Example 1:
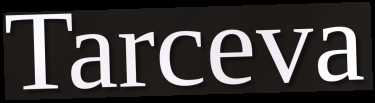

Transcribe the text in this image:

Tarceva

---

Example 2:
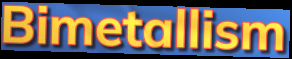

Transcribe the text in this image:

Bimetallism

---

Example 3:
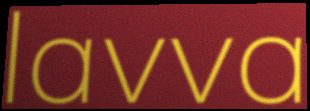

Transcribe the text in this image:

lavva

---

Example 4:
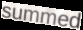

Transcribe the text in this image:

summed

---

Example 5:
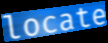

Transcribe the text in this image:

locate